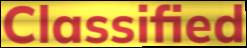
Classified